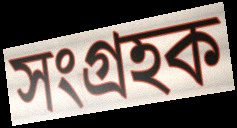
সংগ্ৰহক